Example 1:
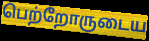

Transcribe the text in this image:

பெற்றோருடைய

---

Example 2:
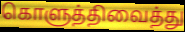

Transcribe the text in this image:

கொளுத்திவைத்து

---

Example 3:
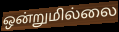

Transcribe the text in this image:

ஒன்றுமில்லை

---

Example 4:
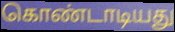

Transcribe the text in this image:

கொண்டாடியது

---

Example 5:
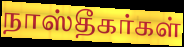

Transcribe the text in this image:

நாஸ்தீகர்கள்